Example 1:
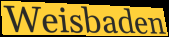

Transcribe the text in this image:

Weisbaden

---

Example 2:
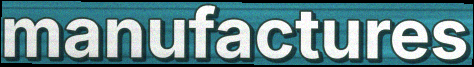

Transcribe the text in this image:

manufactures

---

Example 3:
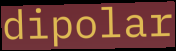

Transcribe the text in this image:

dipolar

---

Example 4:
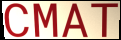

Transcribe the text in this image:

CMAT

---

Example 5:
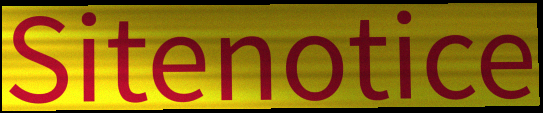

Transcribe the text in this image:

Sitenotice